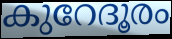
കുറേദൂരം